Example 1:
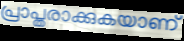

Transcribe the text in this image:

പ്രാപ്തരാക്കുകയാണ്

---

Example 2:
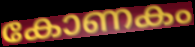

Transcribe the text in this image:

കോണകം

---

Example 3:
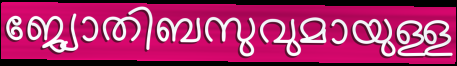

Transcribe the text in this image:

ജ്യോതിബസുവുമായുള്ള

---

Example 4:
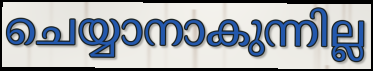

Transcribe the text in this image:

ചെയ്യാനാകുന്നില്ല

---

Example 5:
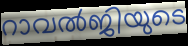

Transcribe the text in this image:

റാവൽജിയുടെ